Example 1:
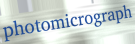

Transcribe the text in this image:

photomicrograph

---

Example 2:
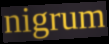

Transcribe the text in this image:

nigrum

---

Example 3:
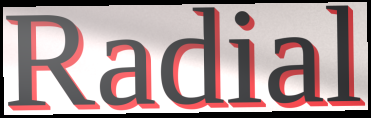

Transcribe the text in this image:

Radial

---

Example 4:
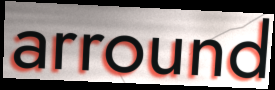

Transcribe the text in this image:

arround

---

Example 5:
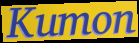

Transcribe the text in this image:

Kumon